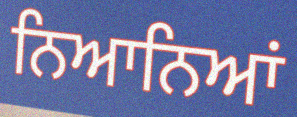
ਨਿਆਨਿਆਂ